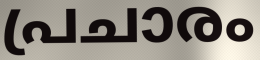
പ്രചാരം